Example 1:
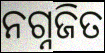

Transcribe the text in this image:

ନଗ୍ନଜିତ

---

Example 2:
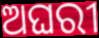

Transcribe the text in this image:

ଅଘରୀ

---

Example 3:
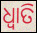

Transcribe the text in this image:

ଧ୍ବାତି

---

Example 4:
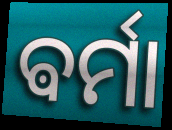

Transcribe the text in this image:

ଵର୍ମା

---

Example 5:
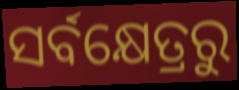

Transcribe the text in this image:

ସର୍ବକ୍ଷେତ୍ରରୁ